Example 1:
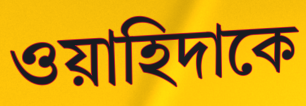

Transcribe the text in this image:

ওয়াহিদাকে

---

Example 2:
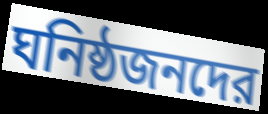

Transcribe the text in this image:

ঘনিষ্ঠজনদের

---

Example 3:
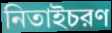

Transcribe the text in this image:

নিতাইচরণ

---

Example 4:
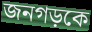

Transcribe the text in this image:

জনগড়কে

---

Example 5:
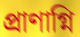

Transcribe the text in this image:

প্রাণাগ্নি